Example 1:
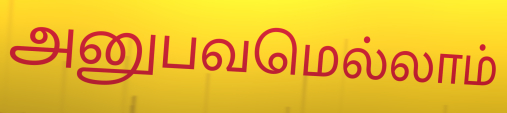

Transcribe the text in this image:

அனுபவமெல்லாம்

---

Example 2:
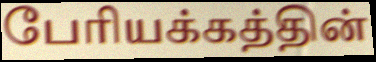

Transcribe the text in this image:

பேரியக்கத்தின்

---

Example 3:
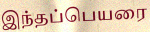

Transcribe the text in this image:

இந்தப்பெயரை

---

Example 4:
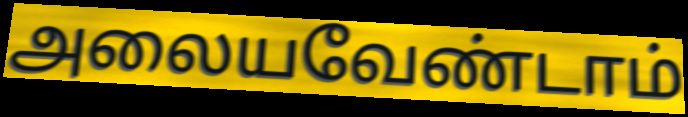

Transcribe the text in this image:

அலையவேண்டாம்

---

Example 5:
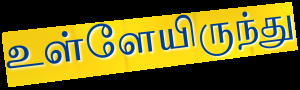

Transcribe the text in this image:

உள்ளேயிருந்து